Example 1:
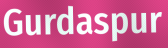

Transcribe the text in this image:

Gurdaspur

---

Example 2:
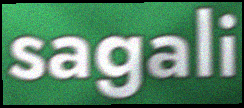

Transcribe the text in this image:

sagali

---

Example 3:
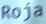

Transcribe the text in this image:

Roja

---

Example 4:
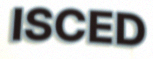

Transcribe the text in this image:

ISCED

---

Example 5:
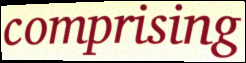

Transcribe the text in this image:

comprising